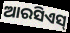
ଆରସିଏସ୍